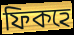
ফিকহে